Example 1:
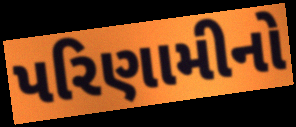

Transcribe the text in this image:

પરિણામીનો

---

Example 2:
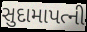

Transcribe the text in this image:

સુદામાપત્ની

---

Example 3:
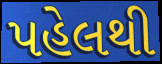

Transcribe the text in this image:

પહેલથી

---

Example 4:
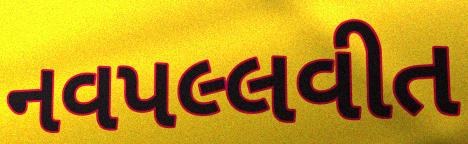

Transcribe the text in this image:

નવપલ્લવીત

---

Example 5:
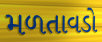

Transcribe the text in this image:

મળતાવડો